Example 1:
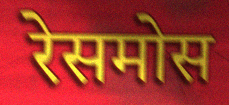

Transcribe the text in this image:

रेसमोस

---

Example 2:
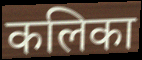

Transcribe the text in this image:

कलिका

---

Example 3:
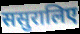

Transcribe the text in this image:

ससुरालिए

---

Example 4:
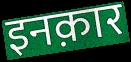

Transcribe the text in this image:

इनक़ार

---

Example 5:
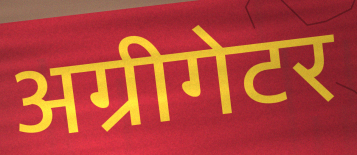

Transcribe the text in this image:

अग्रीगेटर